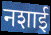
नशाई